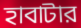
হাবাটার